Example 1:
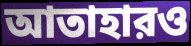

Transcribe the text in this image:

আতাহারও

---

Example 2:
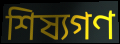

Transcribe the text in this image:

শিষ্যগণ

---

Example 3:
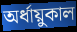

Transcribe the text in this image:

অর্ধায়ুকাল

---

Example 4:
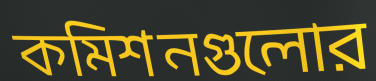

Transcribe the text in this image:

কমিশনগুলোর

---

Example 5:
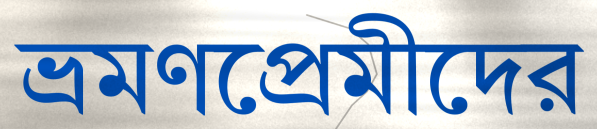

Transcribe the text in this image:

ভ্রমণপ্রেমীদের